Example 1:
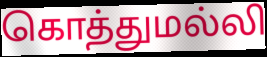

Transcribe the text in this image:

கொத்துமல்லி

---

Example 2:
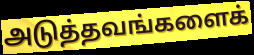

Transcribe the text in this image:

அடுத்தவங்களைக்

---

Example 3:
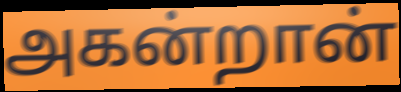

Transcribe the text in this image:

அகன்றான்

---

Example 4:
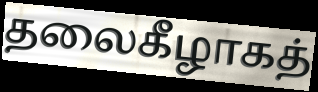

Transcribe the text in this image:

தலைகீழாகத்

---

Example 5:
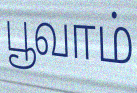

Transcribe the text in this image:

பூவாம்